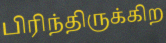
பிரிந்திருக்கிற